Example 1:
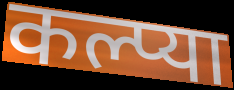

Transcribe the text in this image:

कल्प्या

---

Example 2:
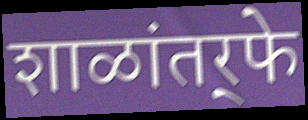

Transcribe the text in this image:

शाळांतर्फे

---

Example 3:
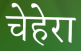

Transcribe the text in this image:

चेहेरा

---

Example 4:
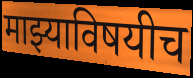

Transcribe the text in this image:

माझ्याविषयीच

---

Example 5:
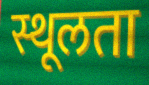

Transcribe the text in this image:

स्थूलता